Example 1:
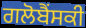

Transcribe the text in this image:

ਗਲੋਬੈਂਸਕੀ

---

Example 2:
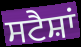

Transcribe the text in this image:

ਸਟੈਸ਼ਾਂ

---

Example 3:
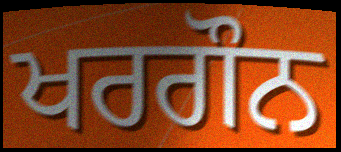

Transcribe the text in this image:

ਖਰਗੌਨ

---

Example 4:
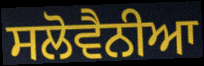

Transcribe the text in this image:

ਸਲੋਵੈਨੀਆ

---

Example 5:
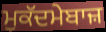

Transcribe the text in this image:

ਮੁਕੱਦਮੇਬਾਜ਼